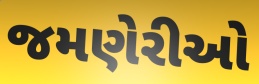
જમણેરીઓ